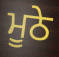
ਮੂਠੇ